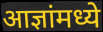
आज्ञांमध्ये